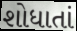
શોધાતાં